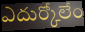
ఎదుర్కోలేం